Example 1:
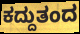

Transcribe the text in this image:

ಕದ್ದುತಂದ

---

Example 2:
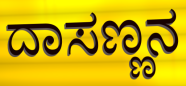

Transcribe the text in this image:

ದಾಸಣ್ಣನ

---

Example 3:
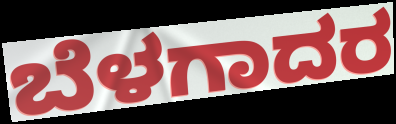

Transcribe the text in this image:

ಬೆಳಗಾದರ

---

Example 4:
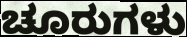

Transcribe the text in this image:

ಚೂರುಗಳು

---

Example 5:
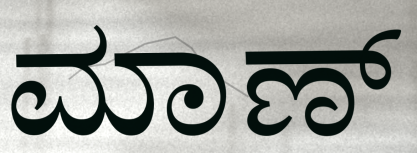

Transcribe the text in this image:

ಮಾಣ್